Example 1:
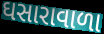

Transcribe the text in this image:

ઘસારાવાળા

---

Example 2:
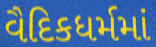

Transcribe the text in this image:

વૈદિકધર્મમાં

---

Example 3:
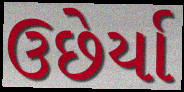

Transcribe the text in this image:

ઉછેર્યા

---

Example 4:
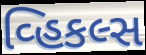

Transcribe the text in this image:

વ્હિકલ્સ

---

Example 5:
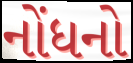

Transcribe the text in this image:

નોંધનો